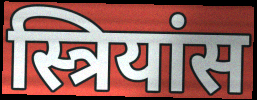
स्त्रियांस